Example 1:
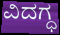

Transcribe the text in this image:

ವಿದಗ್ಧ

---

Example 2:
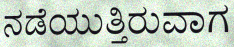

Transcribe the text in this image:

ನಡೆಯುತ್ತಿರುವಾಗ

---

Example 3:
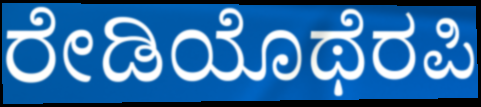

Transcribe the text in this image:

ರೇಡಿಯೊಥೆರಪಿ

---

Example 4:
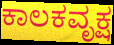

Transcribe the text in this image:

ಕಾಲಕವೃಕ್ಷ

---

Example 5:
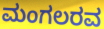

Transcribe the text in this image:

ಮಂಗಲರವ